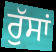
ਰੁੱਸਾਂ